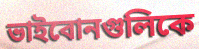
ভাইবোনগুলিকে